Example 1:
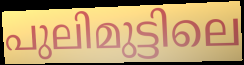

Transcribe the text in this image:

പുലിമുട്ടിലെ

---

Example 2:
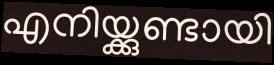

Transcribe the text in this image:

എനിയ്ക്കുണ്ടായി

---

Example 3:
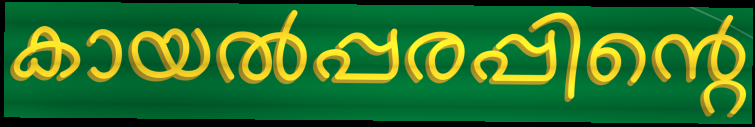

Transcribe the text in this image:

കായൽപ്പരപ്പിന്റെ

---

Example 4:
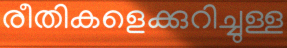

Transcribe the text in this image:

രീതികളെക്കുറിച്ചുള്ള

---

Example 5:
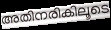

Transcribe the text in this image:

അതിനരികിലൂടെ